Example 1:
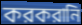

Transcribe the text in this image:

করকরানি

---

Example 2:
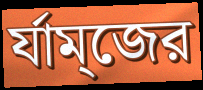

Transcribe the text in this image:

র্যাম্জের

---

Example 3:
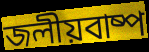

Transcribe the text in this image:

জলীয়বাষ্প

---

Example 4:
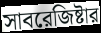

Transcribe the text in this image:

সাবরেজিষ্টার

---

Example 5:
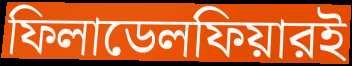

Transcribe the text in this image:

ফিলাডেলফিয়ারই